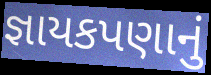
જ્ઞાયકપણાનું